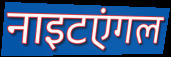
नाइटएंगल